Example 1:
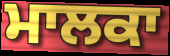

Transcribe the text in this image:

ਮਾਲਕਾ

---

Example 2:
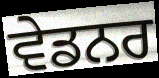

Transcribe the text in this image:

ਵੇਡਨਰ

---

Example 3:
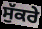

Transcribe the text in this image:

ਸੁੱਕਰੇ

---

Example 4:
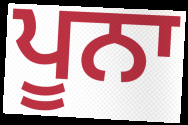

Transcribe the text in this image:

ਪੂਨਾ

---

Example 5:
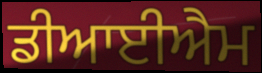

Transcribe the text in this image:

ਡੀਆਈਐਮ